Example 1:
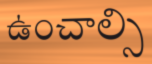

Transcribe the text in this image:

ఉంచాల్సి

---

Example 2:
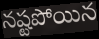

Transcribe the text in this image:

నష్టపోయిన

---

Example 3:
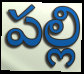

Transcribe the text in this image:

పల్లి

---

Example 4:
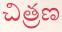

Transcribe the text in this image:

చిత్రణ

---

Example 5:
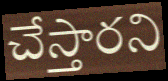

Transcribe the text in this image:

చేస్తారని